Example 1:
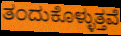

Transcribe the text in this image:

ತಂದುಕೊಳ್ಳುತ್ತವೆ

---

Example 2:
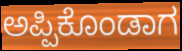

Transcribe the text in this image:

ಅಪ್ಪಿಕೊಂಡಾಗ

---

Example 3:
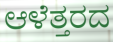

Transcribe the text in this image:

ಆಳೆತ್ತರದ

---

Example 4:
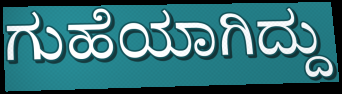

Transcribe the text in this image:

ಗುಹೆಯಾಗಿದ್ದು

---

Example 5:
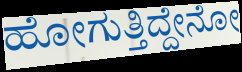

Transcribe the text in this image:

ಹೋಗುತ್ತಿದ್ದೇನೋ